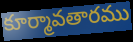
కూర్మావతారము